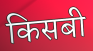
किसबी